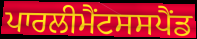
ਪਾਰਲੀਮੈਂਟਸਸਪੈਂਡ